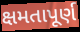
ક્ષમતાપૂર્ણ